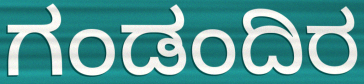
ಗಂಡಂದಿರ